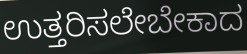
ಉತ್ತರಿಸಲೇಬೇಕಾದ